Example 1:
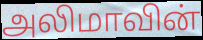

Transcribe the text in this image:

அலிமாவின்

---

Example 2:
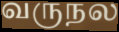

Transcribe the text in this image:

வருநல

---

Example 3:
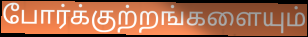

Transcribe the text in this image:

போர்க்குற்றங்களையும்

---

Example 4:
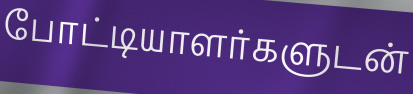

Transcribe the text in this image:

போட்டியாளர்களுடன்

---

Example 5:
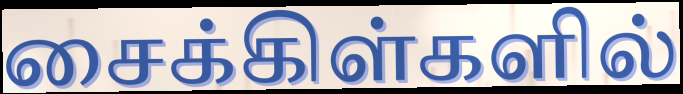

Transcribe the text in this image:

சைக்கிள்களில்